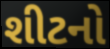
શીટનો